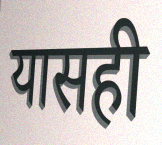
यासही